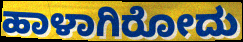
ಹಾಳಾಗಿರೋದು